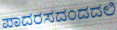
ಪಾದರಸದಂದದಲಿ